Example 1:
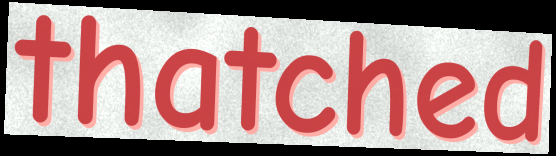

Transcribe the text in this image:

thatched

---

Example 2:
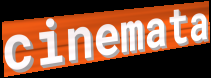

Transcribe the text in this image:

cinemata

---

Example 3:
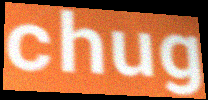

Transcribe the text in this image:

chug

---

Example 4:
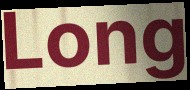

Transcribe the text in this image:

Long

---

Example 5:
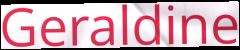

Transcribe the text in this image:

Geraldine